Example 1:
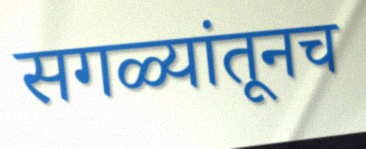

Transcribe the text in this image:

सगळ्यांतूनच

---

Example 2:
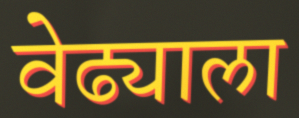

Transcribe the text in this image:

वेढ्याला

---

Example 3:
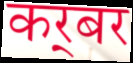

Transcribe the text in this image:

कर्बर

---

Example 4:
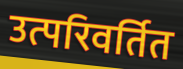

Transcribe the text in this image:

उत्परिवर्तित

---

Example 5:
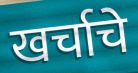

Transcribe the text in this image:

खर्चाचे